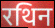
रथिन